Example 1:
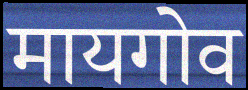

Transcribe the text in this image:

मायगोव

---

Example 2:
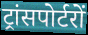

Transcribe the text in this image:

ट्रांसपोर्टरों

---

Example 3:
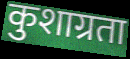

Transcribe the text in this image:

कुशाग्रता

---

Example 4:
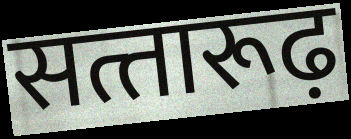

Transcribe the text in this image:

सत्‍तारूढ़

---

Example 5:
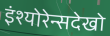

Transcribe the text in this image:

इंश्योरेन्सदेखो